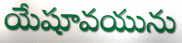
యేషూవయును